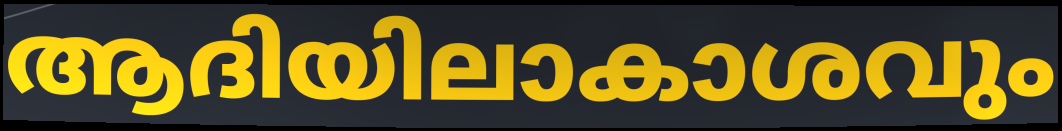
ആദിയിലാകാശവും